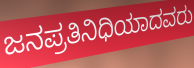
ಜನಪ್ರತಿನಿಧಿಯಾದವರು